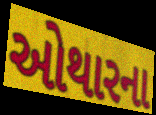
ઓથારના